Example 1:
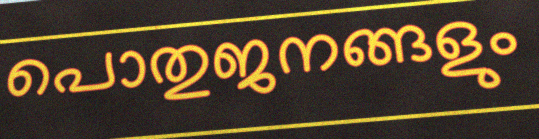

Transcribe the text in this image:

പൊതുജനങ്ങളും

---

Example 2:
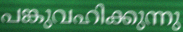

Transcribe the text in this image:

പങ്കുവഹിക്കുന്നു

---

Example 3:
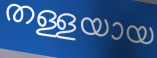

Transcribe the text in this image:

തള്ളയായ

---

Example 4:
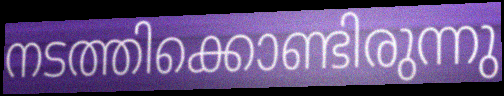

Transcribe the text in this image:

നടത്തിക്കൊണ്ടിരുന്നു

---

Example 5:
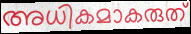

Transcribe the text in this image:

അധികമാകരുത്